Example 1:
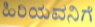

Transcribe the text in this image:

ಹಿರಿಯವನಿಗೆ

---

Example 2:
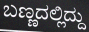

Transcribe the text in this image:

ಬಣ್ಣದಲ್ಲಿದ್ದು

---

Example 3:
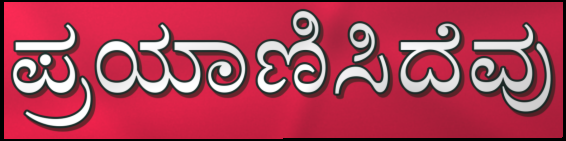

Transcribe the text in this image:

ಪ್ರಯಾಣಿಸಿದೆವು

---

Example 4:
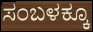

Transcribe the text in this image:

ಸಂಬಳಕ್ಕೂ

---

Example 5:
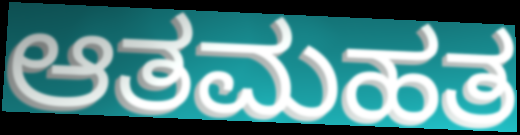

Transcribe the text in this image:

ಆತಮಹತ